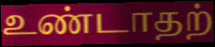
உண்டாதற்